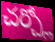
చర్చ్లో